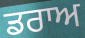
ਡਰਾਅ